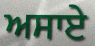
ਅਸਾਏ